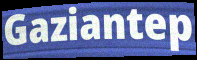
Gaziantep